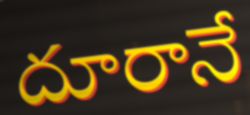
దూరానే